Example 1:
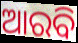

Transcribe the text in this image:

ଆରବି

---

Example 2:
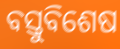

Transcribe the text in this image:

ବସ୍ତୁବିଶେଷ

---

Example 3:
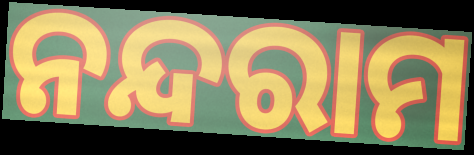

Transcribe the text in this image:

ନନ୍ଦରାମ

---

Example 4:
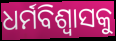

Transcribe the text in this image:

ଧର୍ମବିଶ୍ଵାସକୁ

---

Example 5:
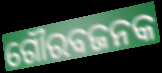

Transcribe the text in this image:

ଗୌରବଜନକ